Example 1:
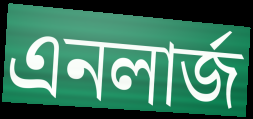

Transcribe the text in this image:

এনলার্জ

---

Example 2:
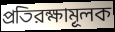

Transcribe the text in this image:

প্রতিরক্ষামূলক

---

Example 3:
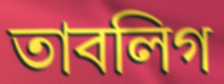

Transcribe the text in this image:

তাবলিগ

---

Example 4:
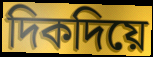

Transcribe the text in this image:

দিকদিয়ে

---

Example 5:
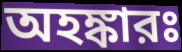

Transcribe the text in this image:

অহঙ্কারঃ